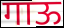
गाऊ